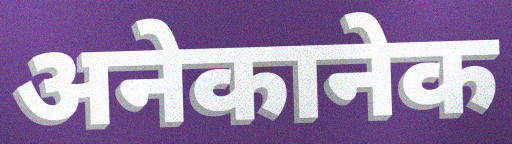
अनेकानेक